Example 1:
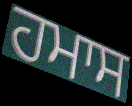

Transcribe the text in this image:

ਹਮਾਸ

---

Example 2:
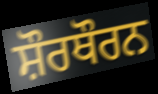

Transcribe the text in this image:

ਸ਼ੌਰਥੌਰਨ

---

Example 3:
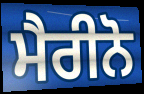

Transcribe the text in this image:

ਮੈਰੀਨੋ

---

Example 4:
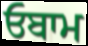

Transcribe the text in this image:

ਓਬਾਮ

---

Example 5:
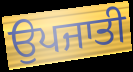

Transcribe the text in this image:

ਉਪਜਾਤੀ